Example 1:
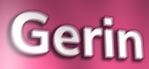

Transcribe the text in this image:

Gerin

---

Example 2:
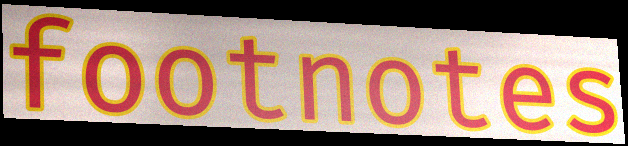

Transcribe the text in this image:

footnotes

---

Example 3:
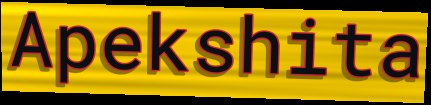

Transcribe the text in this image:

Apekshita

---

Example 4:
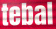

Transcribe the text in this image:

tebal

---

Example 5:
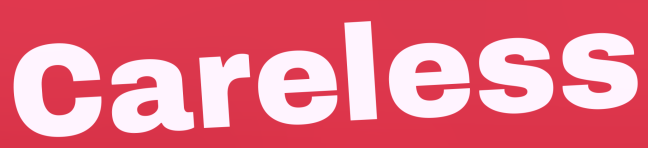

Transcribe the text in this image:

Careless